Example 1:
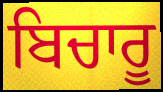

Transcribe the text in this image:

ਬਿਚਾਰੂ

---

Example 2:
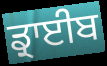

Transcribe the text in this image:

ਡ੍ਰਾਈਬ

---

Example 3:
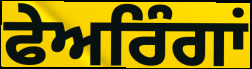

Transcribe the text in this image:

ਫੇਅਰਿੰਗਾਂ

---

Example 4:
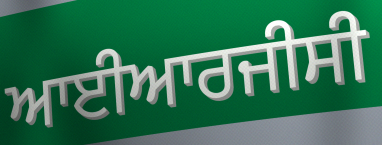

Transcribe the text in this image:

ਆਈਆਰਜੀਸੀ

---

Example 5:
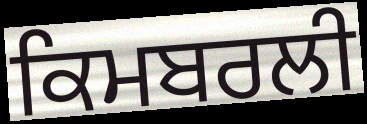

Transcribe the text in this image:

ਕਿਮਬਰਲੀ